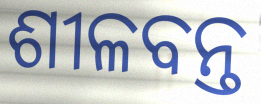
ଶୀଳବନ୍ତ